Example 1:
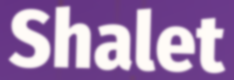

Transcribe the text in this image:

Shalet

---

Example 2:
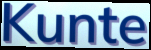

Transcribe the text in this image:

Kunte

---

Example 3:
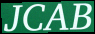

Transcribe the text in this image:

JCAB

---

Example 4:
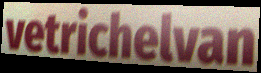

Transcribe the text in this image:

vetrichelvan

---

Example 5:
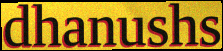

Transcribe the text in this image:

dhanushs